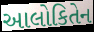
આલોકિતેન